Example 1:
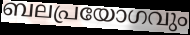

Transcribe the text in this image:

ബലപ്രയോഗവും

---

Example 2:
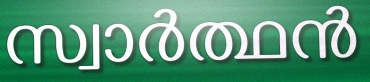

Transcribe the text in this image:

സ്വാർത്ഥൻ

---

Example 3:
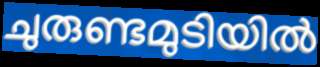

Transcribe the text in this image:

ചുരുണ്ടമുടിയിൽ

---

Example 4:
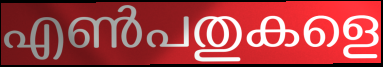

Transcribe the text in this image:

എൺപതുകളെ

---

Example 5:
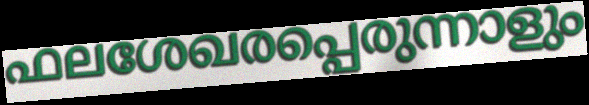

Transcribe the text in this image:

ഫലശേഖരപ്പെരുന്നാളും